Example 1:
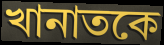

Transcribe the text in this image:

খানাতকে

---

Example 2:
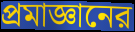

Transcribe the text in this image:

প্রমাজ্ঞানের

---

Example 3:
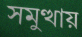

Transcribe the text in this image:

সমুত্থায়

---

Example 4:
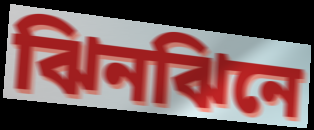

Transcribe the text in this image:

ঝিনঝিনে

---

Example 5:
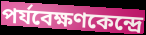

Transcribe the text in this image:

পর্যবেক্ষণকেন্দ্রে